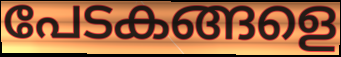
പേടകങ്ങളെ